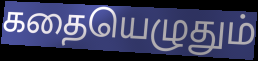
கதையெழுதும்